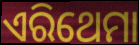
ଏରିଥେମା